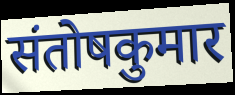
संतोषकुमार